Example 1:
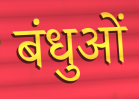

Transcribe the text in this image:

बंधुओं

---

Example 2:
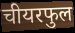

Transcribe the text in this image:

चीयरफुल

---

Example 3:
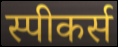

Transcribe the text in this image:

स्पीकर्स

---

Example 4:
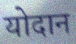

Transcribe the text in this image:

योदान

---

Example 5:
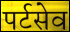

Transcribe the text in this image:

पर्टसेव